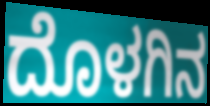
ದೊಳಗಿನ